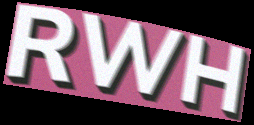
RWH